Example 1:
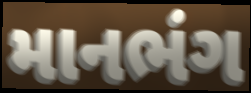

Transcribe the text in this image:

માનભંગ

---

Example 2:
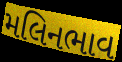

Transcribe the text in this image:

મલિનભાવ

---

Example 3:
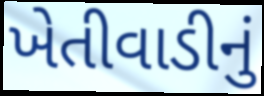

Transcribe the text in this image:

ખેતીવાડીનું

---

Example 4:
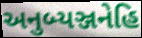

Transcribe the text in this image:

અનુબ્યઞ્જનેહિ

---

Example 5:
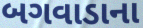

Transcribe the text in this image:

બગવાડાના